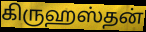
கிருஹஸ்தன்